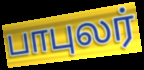
பாபுலர்